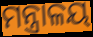
ମନ୍ତ୍ରାଳୟ